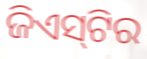
ଜିଏସ୍‌ଟିର